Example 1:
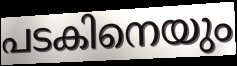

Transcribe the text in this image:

പടകിനെയും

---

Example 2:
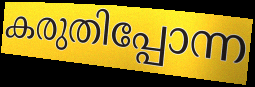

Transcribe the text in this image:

കരുതിപ്പോന്ന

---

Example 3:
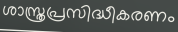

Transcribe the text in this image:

ശാസ്ത്രപ്രസിദ്ധീകരണം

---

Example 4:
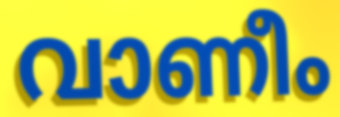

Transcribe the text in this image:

വാണീം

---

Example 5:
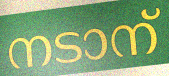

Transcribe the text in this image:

നടാന്